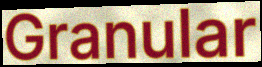
Granular